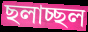
ছলাচ্ছল